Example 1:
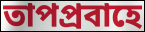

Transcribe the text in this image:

তাপপ্রবাহে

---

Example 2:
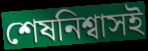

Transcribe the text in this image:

শেষনিশ্বাসই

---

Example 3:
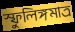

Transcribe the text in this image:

স্ফুলিঙ্গমাত্র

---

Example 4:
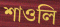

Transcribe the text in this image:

শাওলি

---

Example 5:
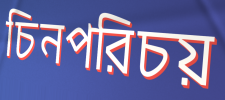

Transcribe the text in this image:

চিনপরিচয়